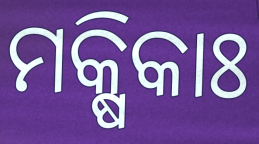
ମକ୍ଷିକାଃ